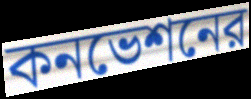
কনভেশনের